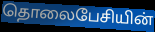
தொலைபேசியின்